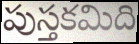
పుస్తకమిది